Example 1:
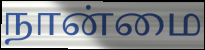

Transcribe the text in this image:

நான்மை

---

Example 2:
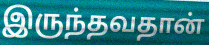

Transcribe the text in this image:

இருந்தவதான்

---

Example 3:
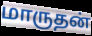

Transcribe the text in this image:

மாருதன்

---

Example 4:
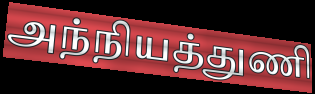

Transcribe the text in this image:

அந்நியத்துணி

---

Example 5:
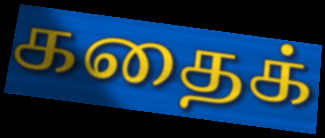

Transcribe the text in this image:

கதைக்